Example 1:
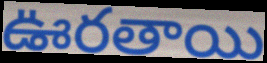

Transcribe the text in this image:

ఊరతాయి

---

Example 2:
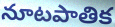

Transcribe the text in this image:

నూటపాతిక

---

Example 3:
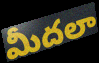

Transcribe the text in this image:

మీదలా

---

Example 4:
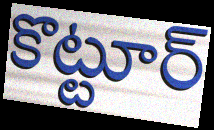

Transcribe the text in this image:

కొట్టూర్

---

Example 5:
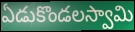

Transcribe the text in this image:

ఏడుకొండలస్వామి